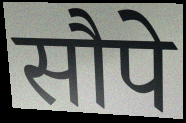
सौपे